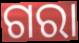
ଗରା